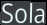
Sola